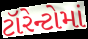
ટૉરેન્ટોમાં